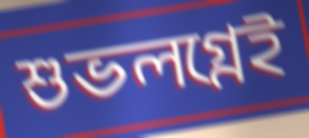
শুভলগ্নেই